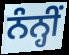
ਨੰਨ੍ਹੀਂ